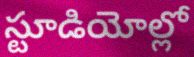
స్టూడియోల్లో